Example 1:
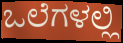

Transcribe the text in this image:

ಒಲೆಗಳಲ್ಲಿ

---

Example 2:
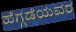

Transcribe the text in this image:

ಹೆಗ್ಗಡೆಯವರ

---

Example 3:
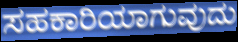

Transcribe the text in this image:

ಸಹಕಾರಿಯಾಗುವುದು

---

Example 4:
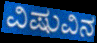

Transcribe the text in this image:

ವಿಷುವಿನ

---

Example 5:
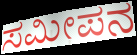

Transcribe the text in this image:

ಸಮೀಪನ